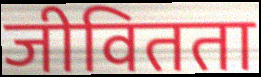
जीवितता